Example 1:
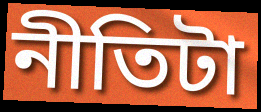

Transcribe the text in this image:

নীতিটা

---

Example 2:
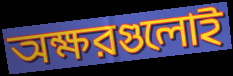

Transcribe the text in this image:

অক্ষরগুলোই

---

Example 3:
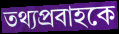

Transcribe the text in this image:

তথ্যপ্রবাহকে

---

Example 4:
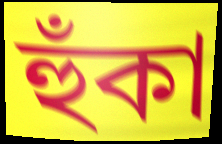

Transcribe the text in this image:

হুঁকা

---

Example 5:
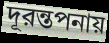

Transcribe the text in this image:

দূরন্তপনায়